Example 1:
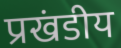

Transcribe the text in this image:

प्रखंडीय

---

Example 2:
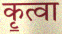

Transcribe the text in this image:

कृ॒त्वा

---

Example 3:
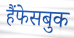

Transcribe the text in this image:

हैंफेसबुक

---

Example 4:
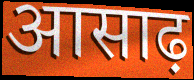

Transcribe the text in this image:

आसाढ़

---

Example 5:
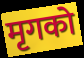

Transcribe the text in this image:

मृगको